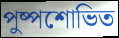
পুষ্পশোভিত